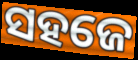
ସହଜେ